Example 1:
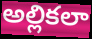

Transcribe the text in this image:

అల్లికలా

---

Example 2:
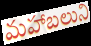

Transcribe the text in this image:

మహాబలుని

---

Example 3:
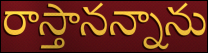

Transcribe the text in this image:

రాస్తానన్నాను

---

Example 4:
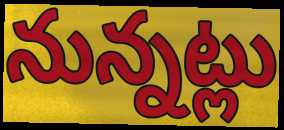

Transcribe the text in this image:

నున్నట్లు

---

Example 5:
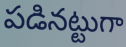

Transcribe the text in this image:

పడినట్టుగా